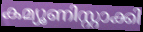
കമ്യൂണിസ്റ്റാക്കി